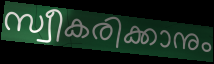
സ്വീകരിക്കാനും